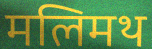
मलिमथ